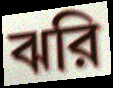
ঝরি